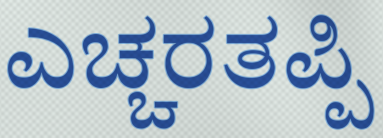
ಎಚ್ಚರತಪ್ಪಿ